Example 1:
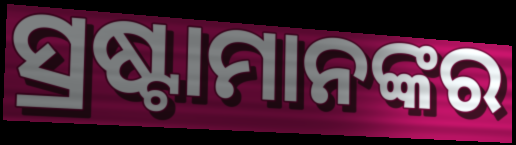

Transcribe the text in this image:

ସ୍ରଷ୍ଟାମାନଙ୍କର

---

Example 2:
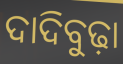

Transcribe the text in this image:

ଦାଦିବୁଢ଼ା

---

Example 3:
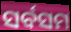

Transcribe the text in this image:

ସର୍ବସମ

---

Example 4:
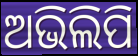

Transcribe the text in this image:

ଅଭିଲିପି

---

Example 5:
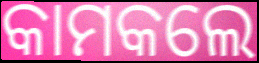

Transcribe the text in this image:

କାମକଲେ